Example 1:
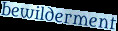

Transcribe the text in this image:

bewilderment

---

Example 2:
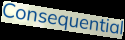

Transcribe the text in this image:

Consequential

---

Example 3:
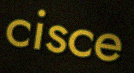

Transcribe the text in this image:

cisce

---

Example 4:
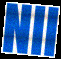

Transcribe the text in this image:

NII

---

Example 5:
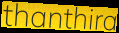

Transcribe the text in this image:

thanthira